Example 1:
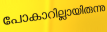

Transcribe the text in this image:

പോകാറില്ലായിരുന്നു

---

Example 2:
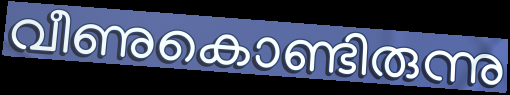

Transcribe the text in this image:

വീണുകൊണ്ടിരുന്നു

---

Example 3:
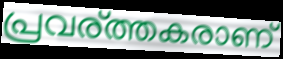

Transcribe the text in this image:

പ്രവര്ത്തകരാണ്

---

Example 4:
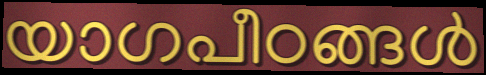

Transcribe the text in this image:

യാഗപീഠങ്ങൾ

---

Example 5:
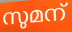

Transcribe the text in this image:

സുമന്